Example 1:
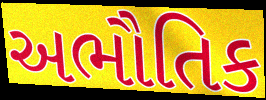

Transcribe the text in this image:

અભૌતિક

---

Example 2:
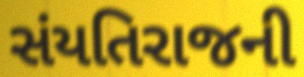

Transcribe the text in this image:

સંયતિરાજની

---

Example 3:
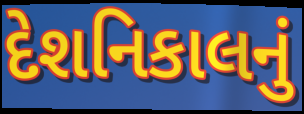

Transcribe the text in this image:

દેશનિકાલનું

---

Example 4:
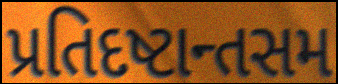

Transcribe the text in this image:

પ્રતિદષ્ટાન્તસમ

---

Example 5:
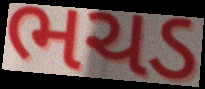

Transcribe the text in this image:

ભચડ